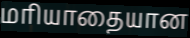
மரியாதையான